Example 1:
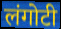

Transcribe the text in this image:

लंगोटी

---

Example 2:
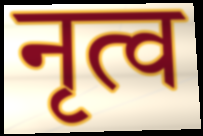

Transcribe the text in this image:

नृत्व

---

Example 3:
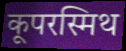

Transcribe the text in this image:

कूपरस्मिथ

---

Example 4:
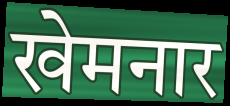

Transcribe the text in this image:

खेमनार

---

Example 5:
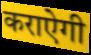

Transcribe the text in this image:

कराऐगी